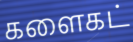
களைகட்